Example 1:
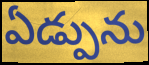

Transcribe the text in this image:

ఏడ్పును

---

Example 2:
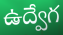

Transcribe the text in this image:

ఉద్వేగ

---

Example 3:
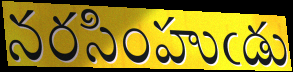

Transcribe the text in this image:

నరసింహుఁడు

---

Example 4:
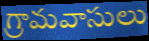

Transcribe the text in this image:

గ్రామవాసులు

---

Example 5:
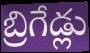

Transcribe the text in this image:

బ్రిగేడ్లు